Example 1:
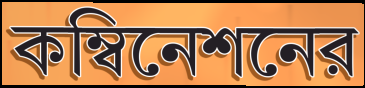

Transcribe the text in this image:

কম্বিনেশনের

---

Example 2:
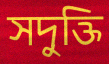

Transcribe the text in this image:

সদুক্তি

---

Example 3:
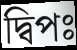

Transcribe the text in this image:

দ্বিপঃ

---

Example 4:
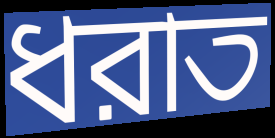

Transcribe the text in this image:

ধরাত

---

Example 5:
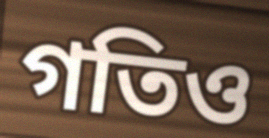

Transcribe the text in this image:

গতিও